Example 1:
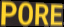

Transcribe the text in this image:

PORE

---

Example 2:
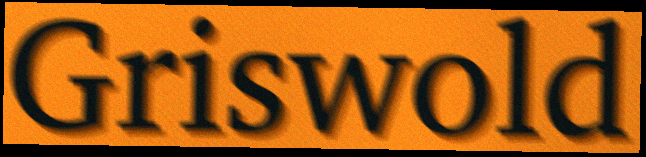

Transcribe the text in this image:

Griswold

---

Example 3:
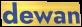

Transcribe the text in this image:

dewan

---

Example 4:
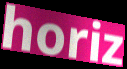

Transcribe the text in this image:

horiz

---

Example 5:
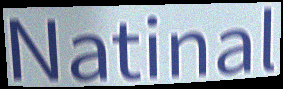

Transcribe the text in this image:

Natinal